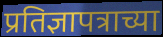
प्रतिज्ञापत्राच्या